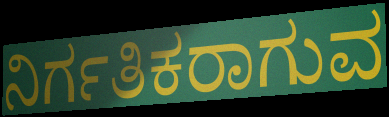
ನಿರ್ಗತಿಕರಾಗುವ